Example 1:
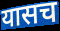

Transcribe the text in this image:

यासच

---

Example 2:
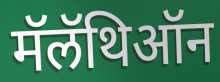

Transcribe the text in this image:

मॅलॅथिऑन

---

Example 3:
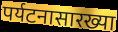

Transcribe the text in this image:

पर्यटनासारख्या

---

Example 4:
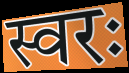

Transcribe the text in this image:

स्वरः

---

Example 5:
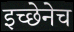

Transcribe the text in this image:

इच्छेनेच